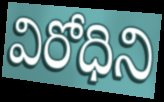
విరోధిని